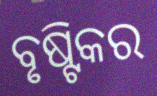
ବୃଷ୍ଟିକର